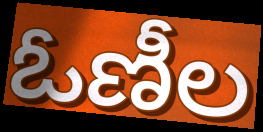
ఓణీల